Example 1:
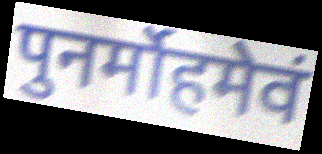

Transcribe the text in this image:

पुनर्मोहमेवं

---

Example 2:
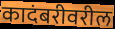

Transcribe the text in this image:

कादंबरीवरील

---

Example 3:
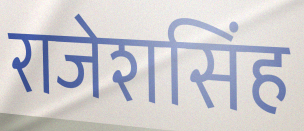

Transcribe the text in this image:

राजेशसिंह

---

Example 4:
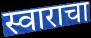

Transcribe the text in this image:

स्वाराचा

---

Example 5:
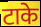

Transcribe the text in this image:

टाके